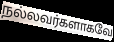
நல்லவர்களாகவே